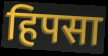
हिपसा